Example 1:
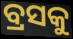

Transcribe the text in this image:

ବ୍ରସକୁ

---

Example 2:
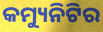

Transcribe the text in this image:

କମ୍ୟୁନିଟିର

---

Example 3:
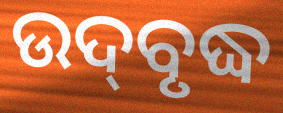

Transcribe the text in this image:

ଉଦ୍‌ବୃଦ୍ଧ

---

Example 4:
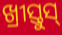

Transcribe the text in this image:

ଖ୍ରୀସ୍ତୁସ୍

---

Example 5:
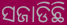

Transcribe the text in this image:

ସଜାଡିଛି